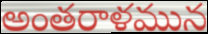
అంతరాళమున